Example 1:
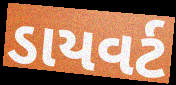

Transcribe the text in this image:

ડાયવર્ટ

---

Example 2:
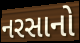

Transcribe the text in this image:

નરસાનો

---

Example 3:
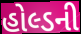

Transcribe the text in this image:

હોલ્ડની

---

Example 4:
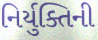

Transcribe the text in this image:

નિર્યુક્તિની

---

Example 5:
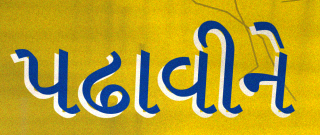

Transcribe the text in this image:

પઢાવીને